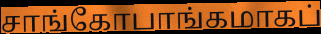
சாங்கோபாங்கமாகப்